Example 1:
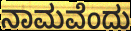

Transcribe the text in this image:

ನಾಮವೆಂದು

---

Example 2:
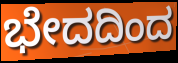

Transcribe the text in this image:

ಭೇದದಿಂದ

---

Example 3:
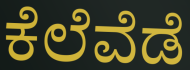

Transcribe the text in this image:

ಕೆಲೆವೆಡೆ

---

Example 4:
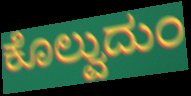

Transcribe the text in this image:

ಕೊಲ್ವುದುಂ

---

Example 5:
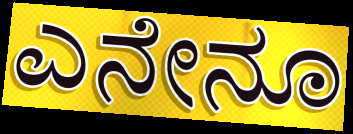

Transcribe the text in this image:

ಎನೇನೂ